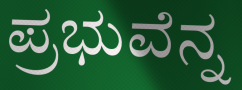
ಪ್ರಭುವೆನ್ನ